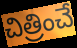
చిత్రించే